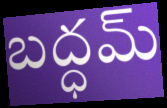
బద్ధమ్